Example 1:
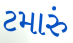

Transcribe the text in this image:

ટમારું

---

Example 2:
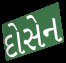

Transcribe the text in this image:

દોસેન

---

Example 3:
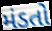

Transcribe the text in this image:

મંડતો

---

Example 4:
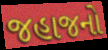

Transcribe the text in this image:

જહાજનો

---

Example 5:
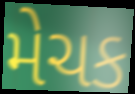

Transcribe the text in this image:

મેચક